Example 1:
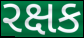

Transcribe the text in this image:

રક્ષક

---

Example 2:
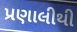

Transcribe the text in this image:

પ્રણાલીથી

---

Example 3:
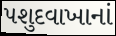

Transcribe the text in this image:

પશુદવાખાનાં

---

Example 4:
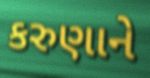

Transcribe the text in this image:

કરુણાને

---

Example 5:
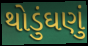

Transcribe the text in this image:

થોડુંઘણું